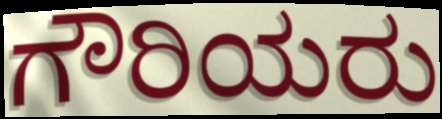
ಗೌರಿಯರು